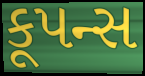
કૂપન્સ